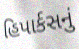
હિપાર્કસનું